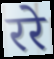
ररे